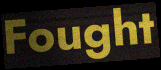
Fought